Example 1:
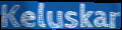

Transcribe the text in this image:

Keluskar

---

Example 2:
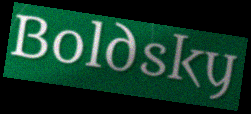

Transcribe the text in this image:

Boldsky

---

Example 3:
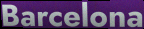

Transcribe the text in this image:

Barcelona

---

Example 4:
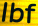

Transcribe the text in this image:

lbf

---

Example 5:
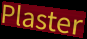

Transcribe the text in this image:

Plaster